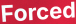
Forced